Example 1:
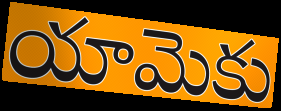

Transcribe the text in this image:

యామెకు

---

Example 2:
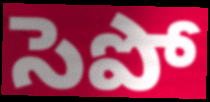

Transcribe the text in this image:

సెపో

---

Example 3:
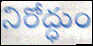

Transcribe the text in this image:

నిరోద్ధుం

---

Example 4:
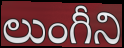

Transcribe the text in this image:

లుంగీని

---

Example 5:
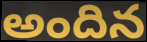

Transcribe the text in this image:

అందిన